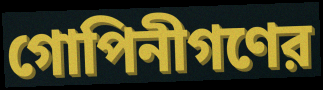
গোপিনীগণের